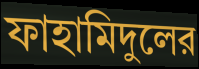
ফাহামিদুলের